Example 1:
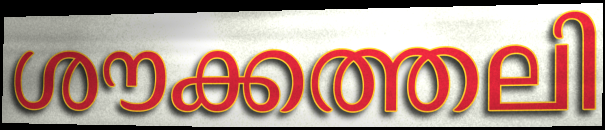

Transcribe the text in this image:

ശൗക്കത്തലി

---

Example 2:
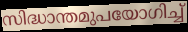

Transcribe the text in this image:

സിദ്ധാന്തമുപയോഗിച്ച്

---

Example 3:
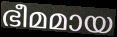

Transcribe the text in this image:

ഭീമമായ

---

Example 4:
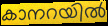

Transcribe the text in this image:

കാനറയിൽ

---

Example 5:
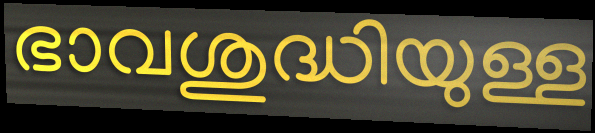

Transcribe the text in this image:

ഭാവശുദ്ധിയുള്ള